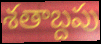
శతాబ్దపు